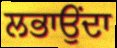
ਲਭਾਉਂਦਾ